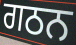
ਗਠਨ